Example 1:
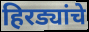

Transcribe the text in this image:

हिरड्यांचे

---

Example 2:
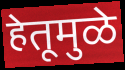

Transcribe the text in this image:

हेतूमुळे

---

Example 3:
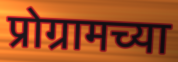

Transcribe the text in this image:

प्रोग्रामच्या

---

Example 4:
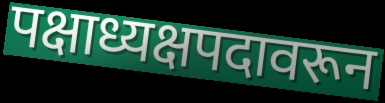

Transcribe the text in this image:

पक्षाध्यक्षपदावरून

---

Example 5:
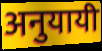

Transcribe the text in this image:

अनुयायी